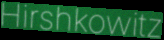
Hirshkowitz